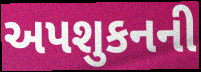
અપશુકનની